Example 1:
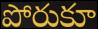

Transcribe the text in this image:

పోరుకూ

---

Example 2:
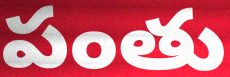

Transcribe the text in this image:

పంతు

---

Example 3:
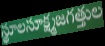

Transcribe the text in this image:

స్థూలసూక్ష్మజగత్తుల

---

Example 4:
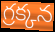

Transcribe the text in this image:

గ్రక్కన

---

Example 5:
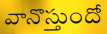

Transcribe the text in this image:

వానొస్తుందో